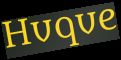
Huque